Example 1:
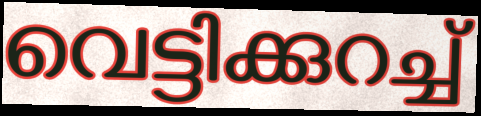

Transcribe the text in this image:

വെട്ടിക്കുറച്ച്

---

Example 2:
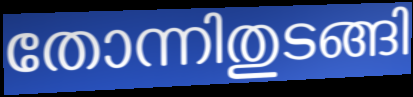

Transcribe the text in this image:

തോന്നിതുടങ്ങി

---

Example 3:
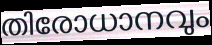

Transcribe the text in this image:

തിരോധാനവും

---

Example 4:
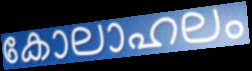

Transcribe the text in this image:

കോലാഹലം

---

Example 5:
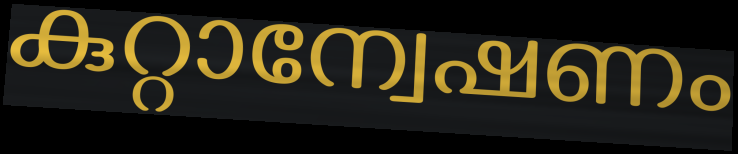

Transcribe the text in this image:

കുറ്റാന്വേഷണം